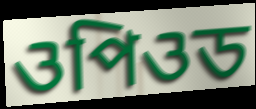
ওপিওড